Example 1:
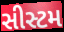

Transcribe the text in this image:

સીસ્ટમ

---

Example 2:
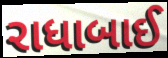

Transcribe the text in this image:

રાધાબાઈ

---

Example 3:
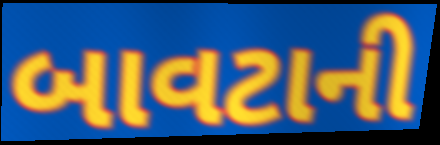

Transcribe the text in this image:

બાવટાની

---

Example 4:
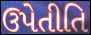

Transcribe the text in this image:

ઉપેતીતિ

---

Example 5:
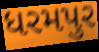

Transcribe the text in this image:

ધરમપુર